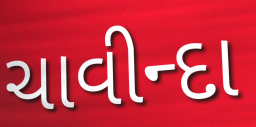
ચાવીન્દા